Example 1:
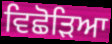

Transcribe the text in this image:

ਵਿਛੋੜਿਆ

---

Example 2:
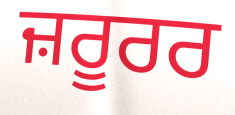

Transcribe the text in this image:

ਜ਼ਰੂਰਰ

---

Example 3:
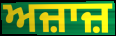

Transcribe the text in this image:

ਅਜ਼ਾਜ਼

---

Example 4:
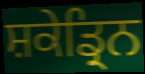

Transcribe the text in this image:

ਸ਼ਕੇਡ੍ਰਿਨ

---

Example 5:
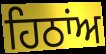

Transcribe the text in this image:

ਹਿਠਾਂਅ